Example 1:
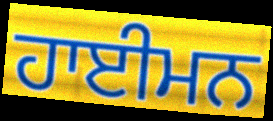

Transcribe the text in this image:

ਹਾਈਮਨ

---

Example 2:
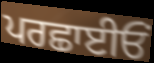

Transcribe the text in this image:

ਪਰਛਾਈਓਂ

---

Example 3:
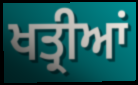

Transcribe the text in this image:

ਖਤ੍ਰੀਆਂ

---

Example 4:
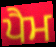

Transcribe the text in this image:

ਪੈਮ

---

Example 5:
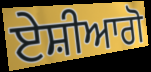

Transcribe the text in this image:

ਏਸ਼ੀਆਗੋ